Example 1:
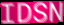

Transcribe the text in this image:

IDSN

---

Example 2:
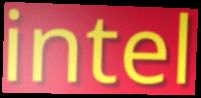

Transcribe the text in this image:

intel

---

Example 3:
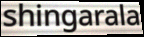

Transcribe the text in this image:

shingarala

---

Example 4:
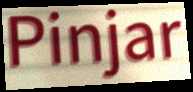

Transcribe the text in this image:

Pinjar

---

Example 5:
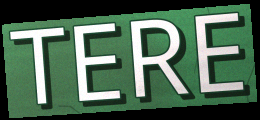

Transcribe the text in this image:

TERE